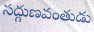
సద్గుణవంతుడు